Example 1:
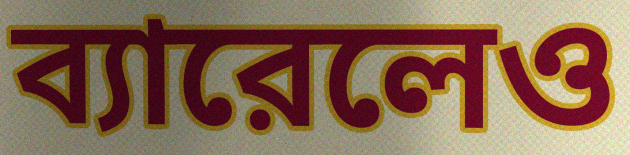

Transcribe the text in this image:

ব্যারেলেও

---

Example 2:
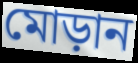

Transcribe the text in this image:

মোড়ান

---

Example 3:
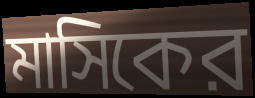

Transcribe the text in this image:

মাসিকের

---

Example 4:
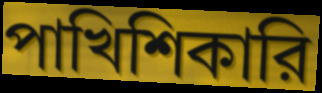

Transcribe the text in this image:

পাখিশিকারি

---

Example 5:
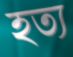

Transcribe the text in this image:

হত্য